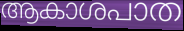
ആകാശപാത